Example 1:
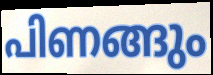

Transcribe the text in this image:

പിണങ്ങും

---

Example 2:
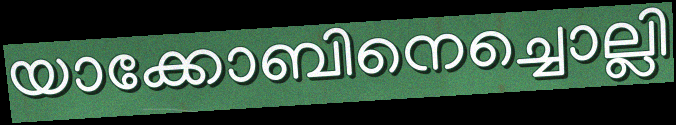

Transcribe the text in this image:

യാക്കോബിനെച്ചൊല്ലി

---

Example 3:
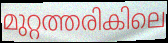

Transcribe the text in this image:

മുറ്റത്തരികിലെ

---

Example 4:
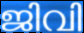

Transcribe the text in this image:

ജിവി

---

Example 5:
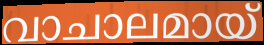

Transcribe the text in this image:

വാചാലമായ്